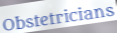
Obstetricians